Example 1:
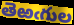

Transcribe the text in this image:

తెఱఁగుల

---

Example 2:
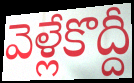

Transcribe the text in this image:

వెళ్లేకొద్దీ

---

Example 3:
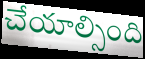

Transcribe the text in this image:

చేయాల్సింది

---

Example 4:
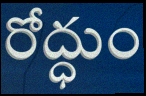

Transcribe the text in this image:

రోద్ధుం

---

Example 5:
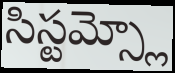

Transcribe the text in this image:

సిస్టమ్స్లో